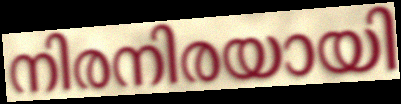
നിരനിരയായി